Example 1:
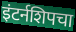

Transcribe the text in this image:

इंटर्नशिपचा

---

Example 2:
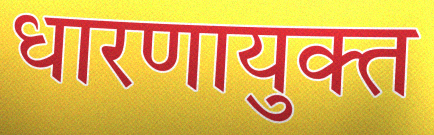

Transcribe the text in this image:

धारणायुक्त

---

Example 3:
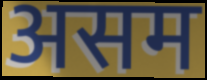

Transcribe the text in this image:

असम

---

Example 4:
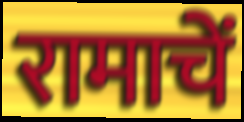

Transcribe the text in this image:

रामाचें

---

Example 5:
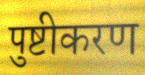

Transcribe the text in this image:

पुष्टीकरण